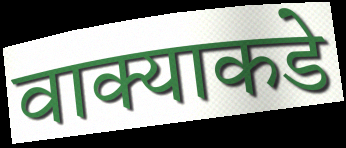
वाक्याकडे